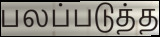
பலப்படுத்த